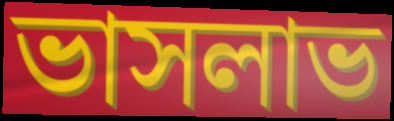
ভাসলাভ